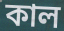
কাল